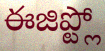
ఈజిప్ట్లో